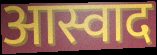
आस्‍वाद